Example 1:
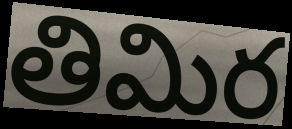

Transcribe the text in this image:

తిమిర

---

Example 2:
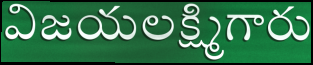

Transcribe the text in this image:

విజయలక్ష్మిగారు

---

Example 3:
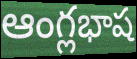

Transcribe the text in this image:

ఆంగ్లభాష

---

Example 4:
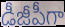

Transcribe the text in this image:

డీజీపీగా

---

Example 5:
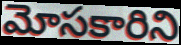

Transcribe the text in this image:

మోసకారిని